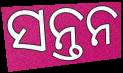
ସନ୍ତନ